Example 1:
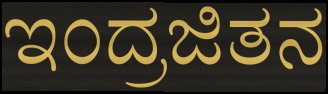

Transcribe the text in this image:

ಇಂದ್ರಜಿತನ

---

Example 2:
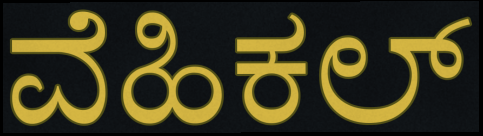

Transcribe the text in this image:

ವೆಹಿಕಲ್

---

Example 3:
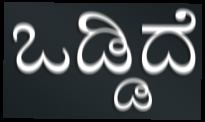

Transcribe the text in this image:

ಒಡ್ಡಿದೆ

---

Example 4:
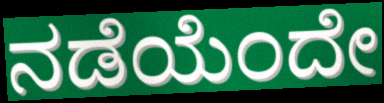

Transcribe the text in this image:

ನಡೆಯೆಂದೇ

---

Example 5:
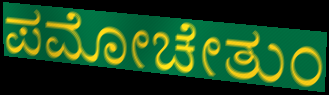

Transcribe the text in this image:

ಪಮೋಚೇತುಂ